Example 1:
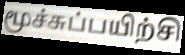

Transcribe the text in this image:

மூச்சுப்பயிற்சி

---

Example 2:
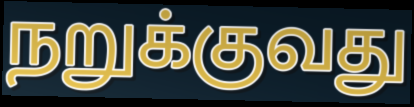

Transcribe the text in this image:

நறுக்குவது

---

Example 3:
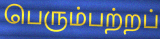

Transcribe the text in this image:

பெரும்பற்றப்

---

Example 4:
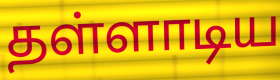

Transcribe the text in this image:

தள்ளாடிய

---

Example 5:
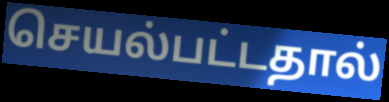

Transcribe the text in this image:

செயல்பட்டதால்